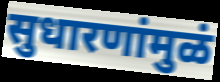
सुधारणांमुळं